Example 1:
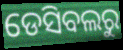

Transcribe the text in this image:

ଡେସିବଲରୁ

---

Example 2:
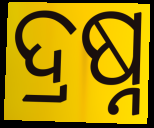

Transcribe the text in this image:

ଦ୍ରଷ୍ନ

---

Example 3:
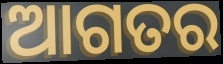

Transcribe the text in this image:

ଆଗତର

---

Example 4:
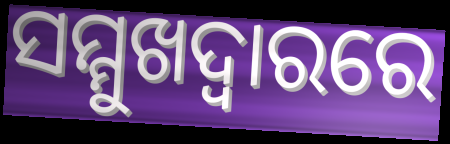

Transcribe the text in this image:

ସମ୍ମୁଖଦ୍ୱାରରେ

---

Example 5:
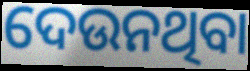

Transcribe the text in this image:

ଦେଉନଥିବା